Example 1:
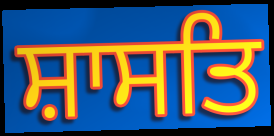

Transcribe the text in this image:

ਸ਼ਾਸਤਿ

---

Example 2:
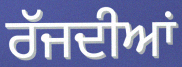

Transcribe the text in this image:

ਰੱਜਦੀਆਂ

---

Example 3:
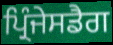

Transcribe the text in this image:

ਪ੍ਰਿੰਜੇਸਡੈਗ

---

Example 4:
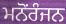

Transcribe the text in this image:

ਮਨੋਂਰੰਜਨ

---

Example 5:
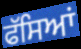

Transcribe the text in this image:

ਫੱਸਿਆਂ